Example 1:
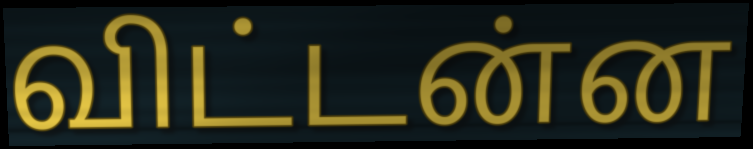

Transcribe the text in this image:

விட்டன்ன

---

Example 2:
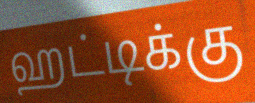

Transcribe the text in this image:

ஹட்டிக்கு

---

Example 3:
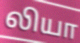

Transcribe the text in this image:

லியா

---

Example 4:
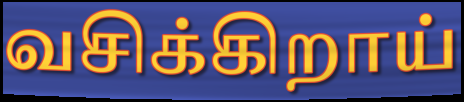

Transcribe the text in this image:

வசிக்கிறாய்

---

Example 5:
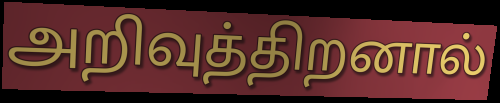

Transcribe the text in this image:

அறிவுத்திறனால்